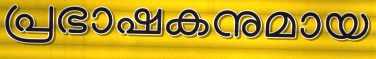
പ്രഭാഷകനുമായ